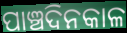
ପାଞ୍ଚଦିନକାଳ